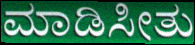
ಮಾಡಿಸೀತು